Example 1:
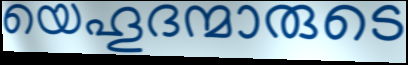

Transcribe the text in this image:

യെഹൂദന്മാരുടെ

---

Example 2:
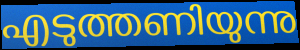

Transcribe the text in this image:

എടുത്തണിയുന്നു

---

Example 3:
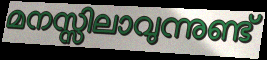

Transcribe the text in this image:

മനസ്സിലാവുന്നുണ്ട്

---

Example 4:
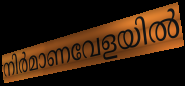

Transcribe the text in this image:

നിർമാണവേളയിൽ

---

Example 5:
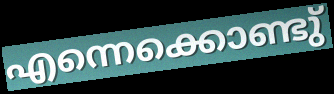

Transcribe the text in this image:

എന്നെക്കൊണ്ടു്